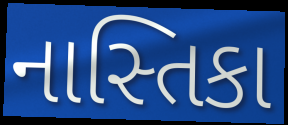
નાસ્તિકા